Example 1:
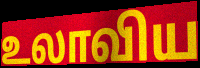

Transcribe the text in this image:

உலாவிய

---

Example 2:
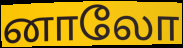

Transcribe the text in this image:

னாலோ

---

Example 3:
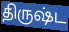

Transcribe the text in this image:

திருஷ்ட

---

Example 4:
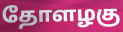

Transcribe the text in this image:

தோளழகு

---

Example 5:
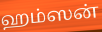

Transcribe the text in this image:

ஹம்ஸன்